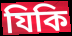
যিকি